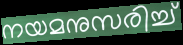
നയമനുസരിച്ച്